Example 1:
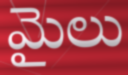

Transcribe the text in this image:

మైలు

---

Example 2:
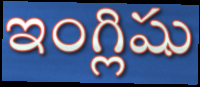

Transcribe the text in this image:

ఇంగ్లిషు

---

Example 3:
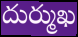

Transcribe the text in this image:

దుర్ముఖ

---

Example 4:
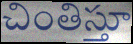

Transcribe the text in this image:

చింతిస్తూ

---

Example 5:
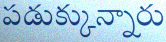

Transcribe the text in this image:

పడుక్కున్నారు